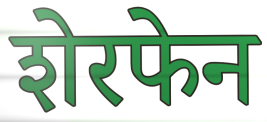
शेरफेन